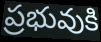
ప్రభువుకి